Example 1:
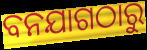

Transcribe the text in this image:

ବନଯାଗଠାରୁ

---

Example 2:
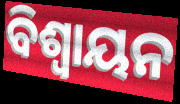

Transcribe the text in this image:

ବିଶ୍ଵାୟନ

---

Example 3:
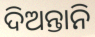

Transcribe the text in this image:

ଦିଅନ୍ତାନି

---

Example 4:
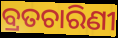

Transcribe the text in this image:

ବ୍ରତଚାରିଣୀ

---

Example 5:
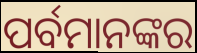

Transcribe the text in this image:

ପର୍ବମାନଙ୍କର